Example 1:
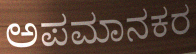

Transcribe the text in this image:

ಅಪಮಾನಕರ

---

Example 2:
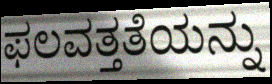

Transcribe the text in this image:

ಫಲವತ್ತತೆಯನ್ನು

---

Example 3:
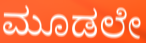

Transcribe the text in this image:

ಮೂಡಲೇ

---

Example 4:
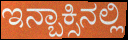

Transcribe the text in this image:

ಇನ್ಬಾಕ್ಸಿನಲ್ಲಿ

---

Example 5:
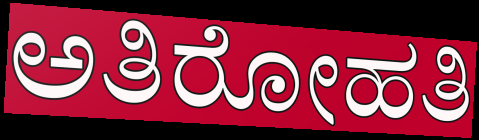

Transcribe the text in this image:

ಅತಿರೋಹತಿ